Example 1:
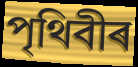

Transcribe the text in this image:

পৃথিবীৰ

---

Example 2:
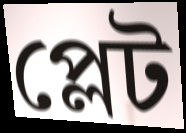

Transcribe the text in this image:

প্লেট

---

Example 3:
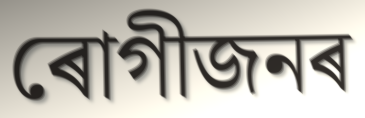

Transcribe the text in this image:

ৰোগীজনৰ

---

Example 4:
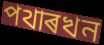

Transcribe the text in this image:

পথাৰখন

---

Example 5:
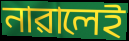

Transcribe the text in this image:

নাৱালেই